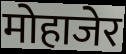
मोहाजेर